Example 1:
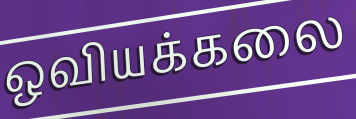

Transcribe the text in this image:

ஒவியக்கலை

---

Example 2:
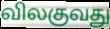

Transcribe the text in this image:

விலகுவது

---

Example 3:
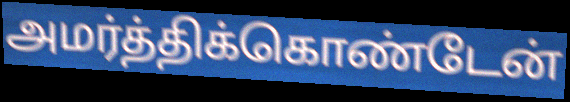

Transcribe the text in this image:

அமர்த்திக்கொண்டேன்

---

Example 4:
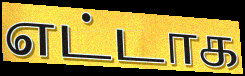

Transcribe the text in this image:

எட்டாக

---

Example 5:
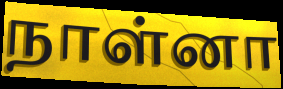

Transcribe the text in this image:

நாள்னா